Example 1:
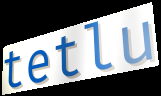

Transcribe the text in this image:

tetlu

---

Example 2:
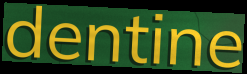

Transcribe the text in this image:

dentine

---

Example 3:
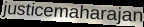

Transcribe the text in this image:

justicemaharajan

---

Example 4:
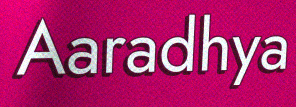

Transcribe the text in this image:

Aaradhya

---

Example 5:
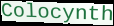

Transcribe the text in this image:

Colocynth